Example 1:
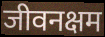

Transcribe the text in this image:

जीवनक्षम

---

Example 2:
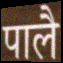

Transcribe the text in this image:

पालै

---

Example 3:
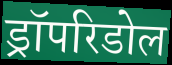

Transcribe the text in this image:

ड्रॉपरिडोल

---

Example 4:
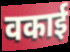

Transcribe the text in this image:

वकाई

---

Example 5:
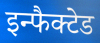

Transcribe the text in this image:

इन्फैक्टेड